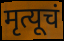
मृत्यूचं